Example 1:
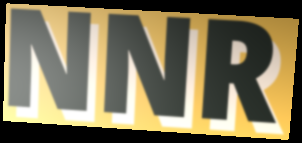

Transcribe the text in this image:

NNR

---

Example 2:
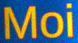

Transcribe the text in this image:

Moi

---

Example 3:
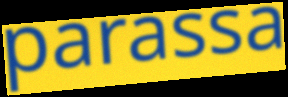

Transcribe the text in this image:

parassa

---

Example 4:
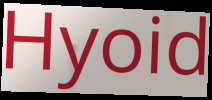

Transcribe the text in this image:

Hyoid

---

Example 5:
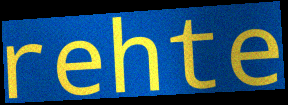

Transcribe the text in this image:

rehte